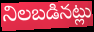
నిలబడినట్లు